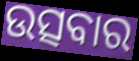
ଉତ୍ସବାର